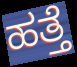
ಹತ್ತೆ